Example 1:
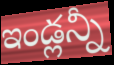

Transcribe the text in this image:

ఇండ్లన్నీ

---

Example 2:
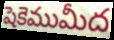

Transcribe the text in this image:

షెకెముమీద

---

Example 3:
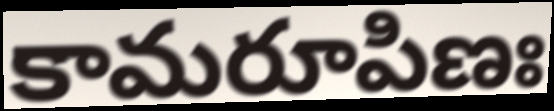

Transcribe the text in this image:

కామరూపిణః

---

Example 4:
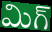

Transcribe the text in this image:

మిగ్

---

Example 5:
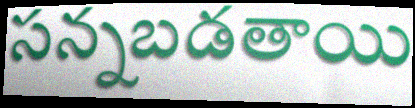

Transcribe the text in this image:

సన్నబడతాయి